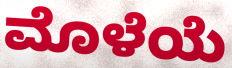
ಮೊಳೆಯೆ